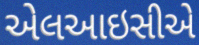
એલઆઇસીએ